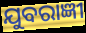
ଯୁବରାଜ୍ଞୀ